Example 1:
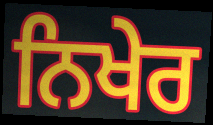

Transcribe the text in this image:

ਨਿਖੇਰ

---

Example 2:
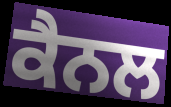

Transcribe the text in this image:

ਕੈਨਲ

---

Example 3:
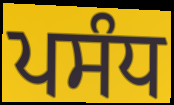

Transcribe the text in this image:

ਪਸੰਧ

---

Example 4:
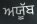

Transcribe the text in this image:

ਅਯੂੱਬ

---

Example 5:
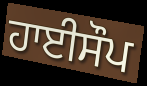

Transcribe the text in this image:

ਹਾਈਸੌਪ